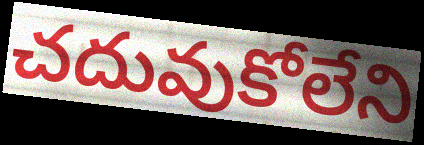
చదువుకోలేని